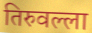
तिरुवल्ला